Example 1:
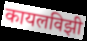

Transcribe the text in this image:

कायलविझी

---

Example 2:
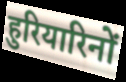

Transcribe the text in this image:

हुरियारिनों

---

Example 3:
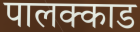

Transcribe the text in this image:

पालक्काड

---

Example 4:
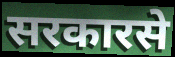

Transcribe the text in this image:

सरकारसे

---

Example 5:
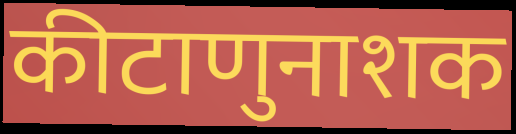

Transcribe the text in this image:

कीटाणुनाशक